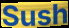
Sush